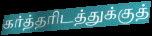
கர்த்தரிடத்துக்குத்